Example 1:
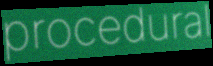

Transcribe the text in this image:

procedural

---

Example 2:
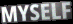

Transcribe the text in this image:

MYSELF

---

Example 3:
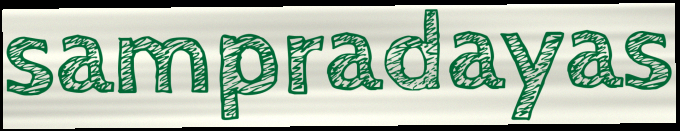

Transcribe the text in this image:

sampradayas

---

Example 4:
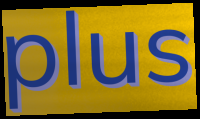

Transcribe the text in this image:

plus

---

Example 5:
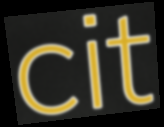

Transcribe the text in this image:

cit